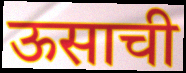
ऊसाची